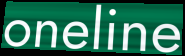
oneline